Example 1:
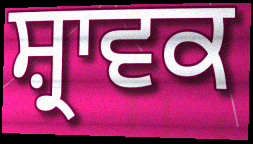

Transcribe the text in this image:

ਸ਼੍ਰਾਵਕ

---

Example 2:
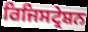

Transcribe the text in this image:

ਰਿਜਿਸਟ੍ਰੇਸ਼ਨ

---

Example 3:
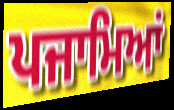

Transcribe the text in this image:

ਪਜਾਮਿਆਂ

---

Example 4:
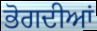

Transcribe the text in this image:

ਭੋਗਦੀਆਂ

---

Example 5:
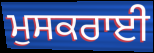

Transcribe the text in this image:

ਮੁਸਕਰਾਈ